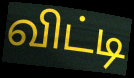
விட்டி